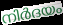
നിർദയം